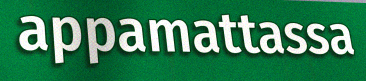
appamattassa